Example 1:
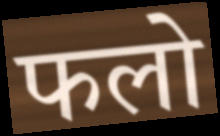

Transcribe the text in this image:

फलो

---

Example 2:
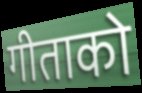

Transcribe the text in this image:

गीताको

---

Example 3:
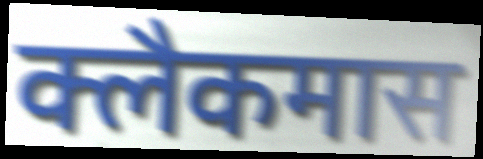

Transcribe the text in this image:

क्लैकमास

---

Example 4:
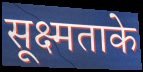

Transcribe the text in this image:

सूक्ष्मताके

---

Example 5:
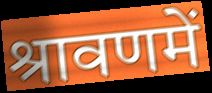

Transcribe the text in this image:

श्रावणमें